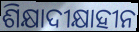
ଶିକ୍ଷାଦୀକ୍ଷାହୀନ